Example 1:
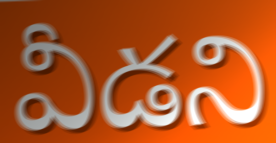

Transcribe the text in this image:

వీడని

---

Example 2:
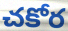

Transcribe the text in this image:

చకోర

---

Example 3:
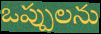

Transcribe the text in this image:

ఒప్పులను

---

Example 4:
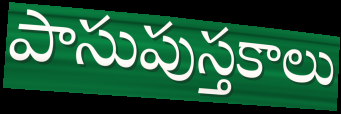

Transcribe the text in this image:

పాసుపుస్తకాలు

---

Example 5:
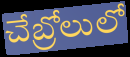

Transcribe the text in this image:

చేబ్రోలులో